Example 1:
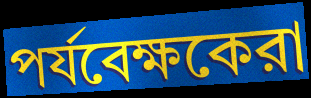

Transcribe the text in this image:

পর্যবেক্ষকেরা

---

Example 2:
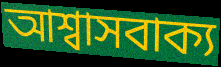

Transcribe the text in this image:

আশ্বাসবাক্য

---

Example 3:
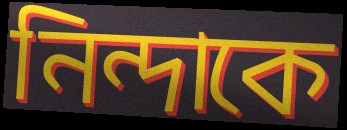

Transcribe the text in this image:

নিন্দাকে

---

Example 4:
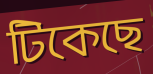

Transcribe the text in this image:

টিকেছে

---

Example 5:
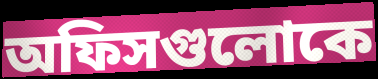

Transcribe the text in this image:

অফিসগুলোকে